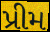
પ્રીમ